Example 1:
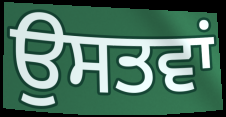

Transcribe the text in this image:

ਉਸਤਵਾਂ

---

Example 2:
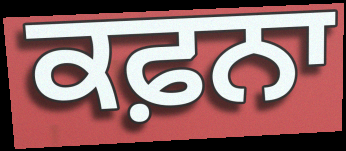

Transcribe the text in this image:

ਕਫ਼ਨਾ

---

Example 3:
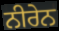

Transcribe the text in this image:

ਨੀਰੇਨ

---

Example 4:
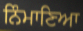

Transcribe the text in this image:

ਨਿੰਮਾਣਿਆ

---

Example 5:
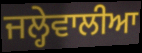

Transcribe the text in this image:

ਜਲ੍ਹੇਵਾਲੀਆ